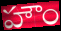
హౌం